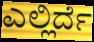
ಎಲ್ಲಿರ್ದೆ